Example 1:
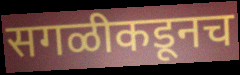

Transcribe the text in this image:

सगळीकडूनच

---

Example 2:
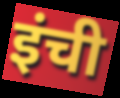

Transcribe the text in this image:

इंची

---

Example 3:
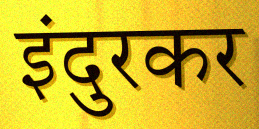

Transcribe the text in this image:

इंदुरकर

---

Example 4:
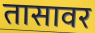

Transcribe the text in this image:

तासावर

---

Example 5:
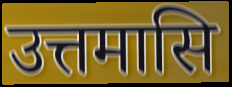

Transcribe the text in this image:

उत्तमासि